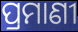
ପ୍ରମାଣୀ